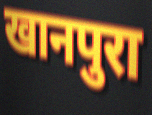
खानपुरा